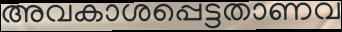
അവകാശപ്പെട്ടതാണവ